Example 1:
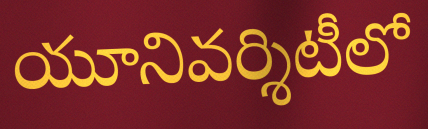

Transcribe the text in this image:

యూనివర్శిటీలో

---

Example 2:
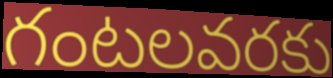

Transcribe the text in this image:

గంటలవరకు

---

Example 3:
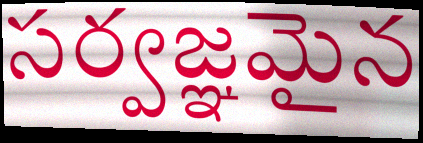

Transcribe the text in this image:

సర్వజ్ఞమైన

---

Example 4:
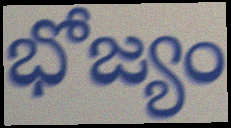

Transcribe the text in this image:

భోజ్యం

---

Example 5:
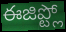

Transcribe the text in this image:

ఈజిప్ట్లో